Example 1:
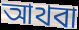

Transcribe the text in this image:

আথবা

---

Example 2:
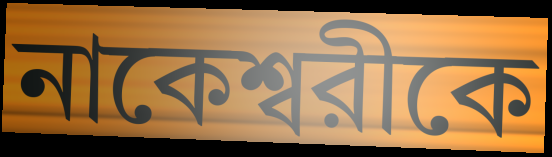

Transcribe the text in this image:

নাকেশ্বরীকে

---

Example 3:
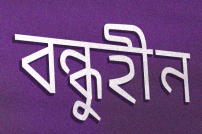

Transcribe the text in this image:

বন্ধুহীন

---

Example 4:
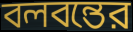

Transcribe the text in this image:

বলবন্তের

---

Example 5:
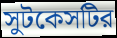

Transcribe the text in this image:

সুটকেসটির